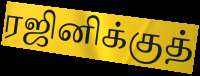
ரஜினிக்குத்